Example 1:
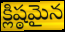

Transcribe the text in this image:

క్లిష్ఠమైన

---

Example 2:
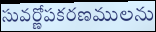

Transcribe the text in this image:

సువర్ణోపకరణములను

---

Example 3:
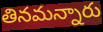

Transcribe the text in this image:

తినమన్నారు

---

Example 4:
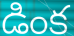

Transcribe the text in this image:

డింక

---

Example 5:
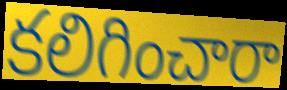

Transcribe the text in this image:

కలిగించారా